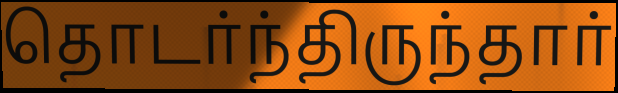
தொடர்ந்திருந்தார்